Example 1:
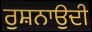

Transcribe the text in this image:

ਰੁਸ਼ਨਾਉਦੀ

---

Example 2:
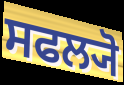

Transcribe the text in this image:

ਸਫਲ੍ਯੋ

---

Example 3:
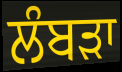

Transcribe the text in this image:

ਲੰਬੜਾ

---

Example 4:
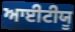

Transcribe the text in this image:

ਆਈਟੀਯੂ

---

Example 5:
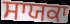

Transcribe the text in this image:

ਸਾਯਕਾ